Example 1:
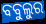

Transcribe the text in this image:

ବବୁଲୁର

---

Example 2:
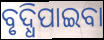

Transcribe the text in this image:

ବୃଦ୍ଧିପାଇବା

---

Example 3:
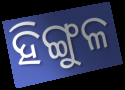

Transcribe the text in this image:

ହିଙ୍ଗୁଳ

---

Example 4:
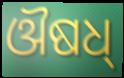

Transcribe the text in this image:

ଔଷଧ୍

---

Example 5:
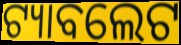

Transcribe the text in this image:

ଟ୍ୟାବଲେଟ